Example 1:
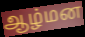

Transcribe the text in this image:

ஆழ்மன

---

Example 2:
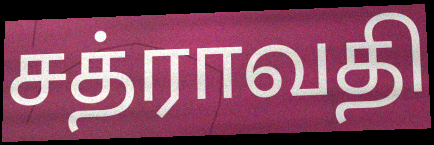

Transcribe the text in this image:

சத்ராவதி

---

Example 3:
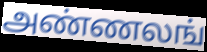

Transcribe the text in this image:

அண்ணலங்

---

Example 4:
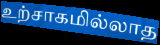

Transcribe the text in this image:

உற்சாகமில்லாத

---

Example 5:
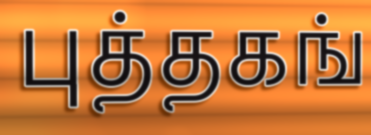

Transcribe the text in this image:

புத்தகங்